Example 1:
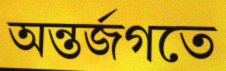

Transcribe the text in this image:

অন্তর্জগতে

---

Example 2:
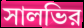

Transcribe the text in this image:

সালভির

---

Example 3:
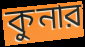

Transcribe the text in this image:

কুনার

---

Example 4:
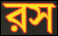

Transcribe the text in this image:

রস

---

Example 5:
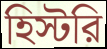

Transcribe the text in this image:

হিস্টরি